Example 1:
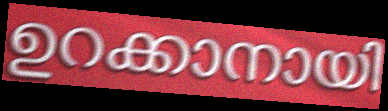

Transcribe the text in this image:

ഉറക്കാനായി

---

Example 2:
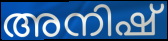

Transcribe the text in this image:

അനിഷ്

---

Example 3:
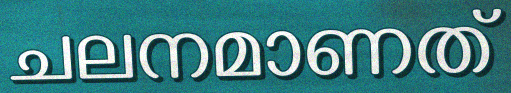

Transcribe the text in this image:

ചലനമാണത്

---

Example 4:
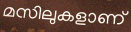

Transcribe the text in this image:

മസിലുകളാണ്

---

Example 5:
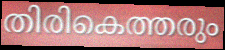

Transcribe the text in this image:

തിരികെത്തരും